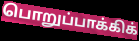
பொறுப்பாக்கிக்